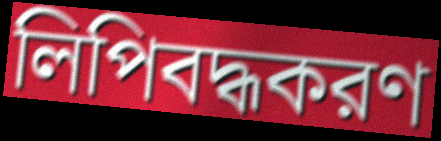
লিপিবদ্ধকরণ